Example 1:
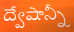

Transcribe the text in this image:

ద్వేషాన్నీ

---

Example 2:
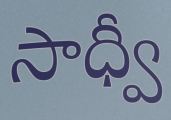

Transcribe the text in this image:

సాధ్వీ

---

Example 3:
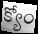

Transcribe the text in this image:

క్యోం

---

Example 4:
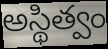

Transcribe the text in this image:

అస్థిత్వం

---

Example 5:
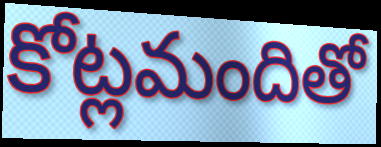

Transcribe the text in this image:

కోట్లమందితో